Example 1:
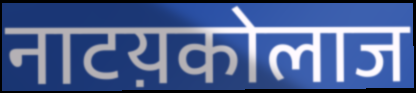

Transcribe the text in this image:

नाटय़कोलाज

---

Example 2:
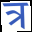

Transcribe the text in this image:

त्र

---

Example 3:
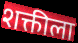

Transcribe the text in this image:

शक्तीला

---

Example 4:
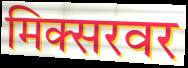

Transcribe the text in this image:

मिक्‍सरवर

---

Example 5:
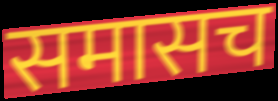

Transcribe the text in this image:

समासच